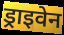
ड्राइवेन